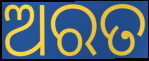
ଅରତ